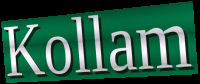
Kollam